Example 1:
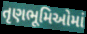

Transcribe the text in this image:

તૃણભૂમિઓમાં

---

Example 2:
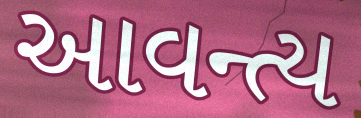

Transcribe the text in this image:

આવન્ત્ય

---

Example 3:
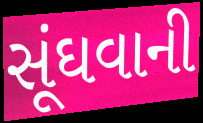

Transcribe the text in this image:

સૂંઘવાની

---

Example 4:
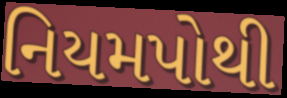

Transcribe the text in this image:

નિયમપોથી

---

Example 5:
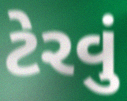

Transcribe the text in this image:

ટેરવું